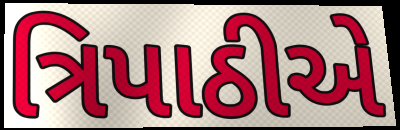
ત્રિપાઠીએ